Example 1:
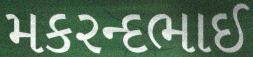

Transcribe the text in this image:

મકરન્દભાઈ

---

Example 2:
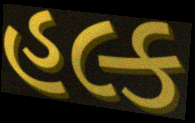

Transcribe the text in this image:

હલ્ક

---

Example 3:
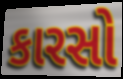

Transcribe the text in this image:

કારસો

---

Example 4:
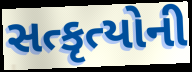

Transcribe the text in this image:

સત્કૃત્યોની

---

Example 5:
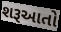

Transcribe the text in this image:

શરૂઆતો